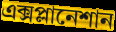
এক্সপ্লানেশান